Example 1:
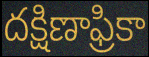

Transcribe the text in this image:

దక్షిణాఫ్రికా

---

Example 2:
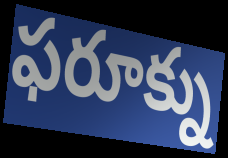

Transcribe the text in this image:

ఫరూక్ను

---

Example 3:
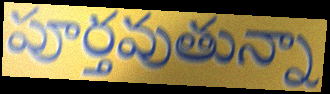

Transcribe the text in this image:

పూర్తవుతున్నా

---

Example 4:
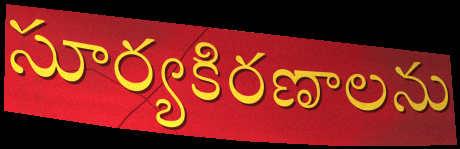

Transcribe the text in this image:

సూర్యకిరణాలను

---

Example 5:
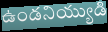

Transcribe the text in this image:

ఉండనియ్యుడి